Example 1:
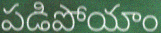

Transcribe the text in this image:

పడిపోయాం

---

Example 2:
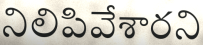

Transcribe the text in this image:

నిలిపివేశారని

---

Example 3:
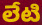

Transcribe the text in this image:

లేటి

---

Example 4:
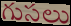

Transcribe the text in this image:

గుసలు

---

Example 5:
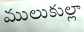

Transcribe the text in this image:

ములుకుల్లా